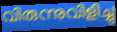
വിരുന്നുവിളിച്ചു